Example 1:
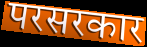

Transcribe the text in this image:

परसरकार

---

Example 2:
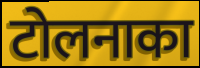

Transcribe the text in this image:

टोलनाका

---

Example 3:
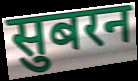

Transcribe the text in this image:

सुबरन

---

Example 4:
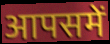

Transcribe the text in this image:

आपसमें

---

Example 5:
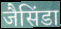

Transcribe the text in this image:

जैसिंडा